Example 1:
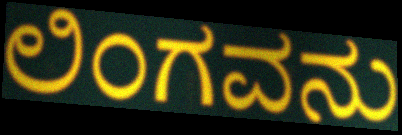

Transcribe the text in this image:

ಲಿಂಗವನು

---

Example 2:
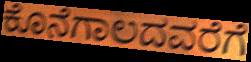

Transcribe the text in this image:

ಕೊನೆಗಾಲದವರೆಗೆ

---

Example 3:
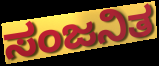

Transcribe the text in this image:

ಸಂಜನಿತ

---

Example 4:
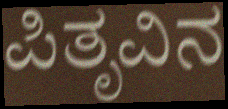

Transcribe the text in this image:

ಪಿತೃವಿನ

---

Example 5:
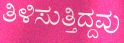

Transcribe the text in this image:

ತಿಳಿಸುತ್ತಿದ್ದವು